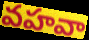
వహవా